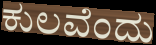
ಕುಲವೆಂದು